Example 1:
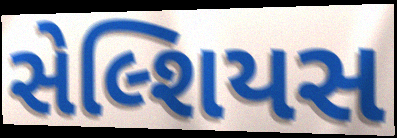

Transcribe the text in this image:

સેલ્શિયસ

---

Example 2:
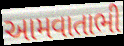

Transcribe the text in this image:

આમવાતાભી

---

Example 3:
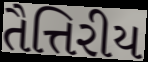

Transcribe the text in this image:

તૈત્તિરીય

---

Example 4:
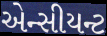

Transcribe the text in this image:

એન્સીયન્ટ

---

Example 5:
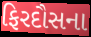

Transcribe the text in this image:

ફિરદૌસના